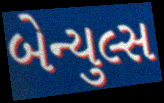
બેન્યુલ્સ